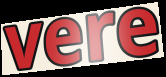
vere